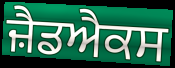
ਜ਼ੈਡਐਕਸ